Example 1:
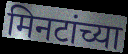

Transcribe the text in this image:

मिनटांच्या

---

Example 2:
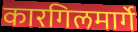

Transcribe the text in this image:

कारगिलमार्गे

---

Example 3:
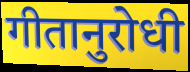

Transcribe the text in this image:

गीतानुरोधी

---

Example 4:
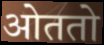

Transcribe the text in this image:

ओततो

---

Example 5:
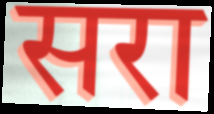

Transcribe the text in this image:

सरा